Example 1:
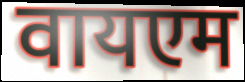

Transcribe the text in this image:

वायएम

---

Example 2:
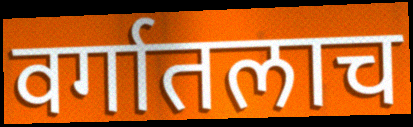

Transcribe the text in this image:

वर्गातलाच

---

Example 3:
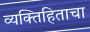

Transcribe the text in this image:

व्यक्तिहिताचा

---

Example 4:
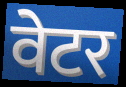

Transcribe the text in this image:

वेटर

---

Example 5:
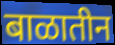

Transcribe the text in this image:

बाळातीन